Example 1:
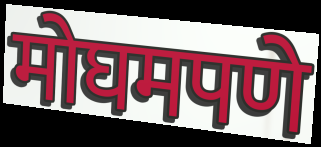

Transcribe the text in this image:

मोघमपणे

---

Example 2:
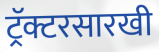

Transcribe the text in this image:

ट्रॅक्टरसारखी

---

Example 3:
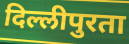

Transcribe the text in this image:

दिल्लीपुरता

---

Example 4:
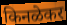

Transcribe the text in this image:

किनळेकर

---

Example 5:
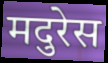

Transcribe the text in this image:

मदुरेस